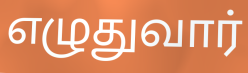
எழுதுவார்